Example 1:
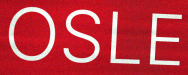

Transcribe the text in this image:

OSLE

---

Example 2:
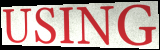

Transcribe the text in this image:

USING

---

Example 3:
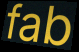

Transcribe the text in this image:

fab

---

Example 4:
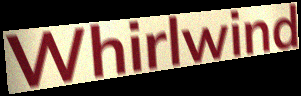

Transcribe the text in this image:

Whirlwind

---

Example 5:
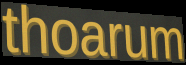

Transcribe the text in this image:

thoarum